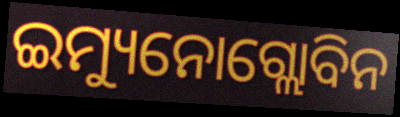
ଇମ୍ୟୁନୋଗ୍ଲୋବିନ